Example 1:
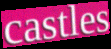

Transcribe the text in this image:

castles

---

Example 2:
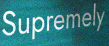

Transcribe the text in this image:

Supremely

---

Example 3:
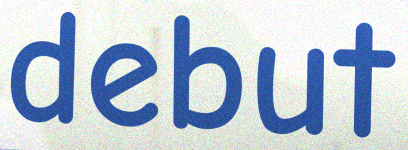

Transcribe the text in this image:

debut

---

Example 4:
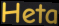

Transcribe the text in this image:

Heta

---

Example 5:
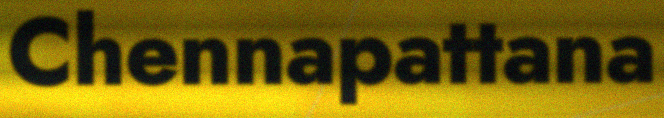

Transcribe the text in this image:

Chennapattana